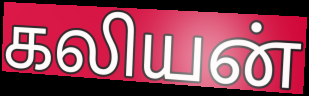
கலியன்